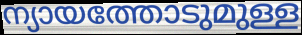
ന്യായത്തോടുമുള്ള